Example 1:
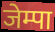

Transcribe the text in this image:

जेम्पा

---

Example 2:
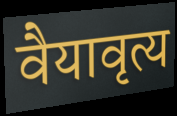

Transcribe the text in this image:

वैयावृत्य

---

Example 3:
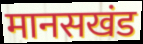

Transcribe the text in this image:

मानसखंड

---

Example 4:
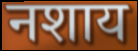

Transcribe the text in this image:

नशाय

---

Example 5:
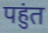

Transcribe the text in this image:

पहुंत